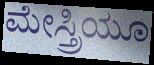
ಮೇಸ್ತ್ರಿಯೂ